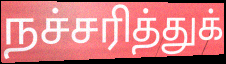
நச்சரித்துக்